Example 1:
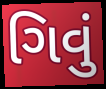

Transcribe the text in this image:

ગિવું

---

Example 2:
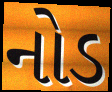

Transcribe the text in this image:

નોડ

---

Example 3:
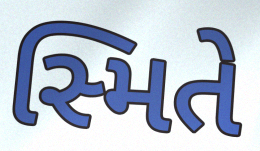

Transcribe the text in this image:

સ્મિતે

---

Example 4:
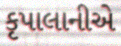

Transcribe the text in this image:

કૃપાલાનીએ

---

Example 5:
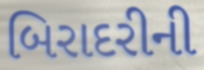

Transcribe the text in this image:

બિરાદરીની